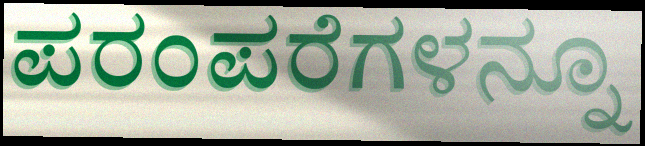
ಪರಂಪರೆಗಳನ್ನೂ